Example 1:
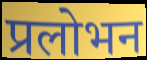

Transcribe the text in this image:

प्रलोभन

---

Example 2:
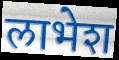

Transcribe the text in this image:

लाभेश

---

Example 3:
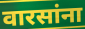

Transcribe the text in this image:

वारसांना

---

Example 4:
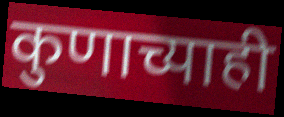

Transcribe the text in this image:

कुणाच्याही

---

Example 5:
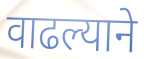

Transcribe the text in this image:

वाढल्याने